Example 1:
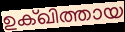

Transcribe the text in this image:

ഉക്ഖിത്തായ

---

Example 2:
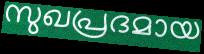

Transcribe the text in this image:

സുഖപ്രദമായ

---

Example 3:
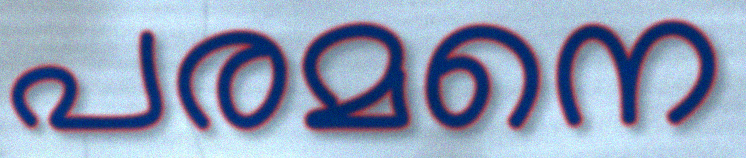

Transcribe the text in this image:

പരമനെ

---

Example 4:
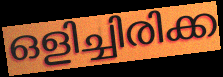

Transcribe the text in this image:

ഒളിച്ചിരിക്ക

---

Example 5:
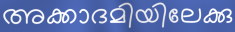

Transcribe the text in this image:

അക്കാദമിയിലേക്കു